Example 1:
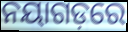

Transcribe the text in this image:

ନୟାଗଡ଼ରେ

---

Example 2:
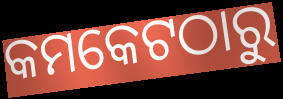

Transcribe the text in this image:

କମକେଟଠାରୁ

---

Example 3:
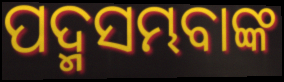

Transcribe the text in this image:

ପଦ୍ମସମ୍ଭବାଙ୍କ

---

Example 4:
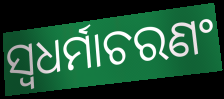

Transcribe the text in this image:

ସ୍ୱଧର୍ମାଚରଣଂ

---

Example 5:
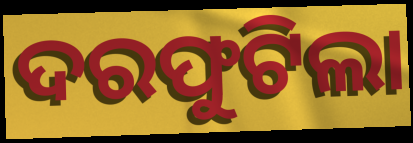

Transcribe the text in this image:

ଦରଫୁଟିଲା